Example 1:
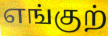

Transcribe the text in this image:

எங்குற்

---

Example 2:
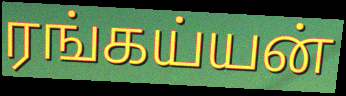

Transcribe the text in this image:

ரங்கய்யன்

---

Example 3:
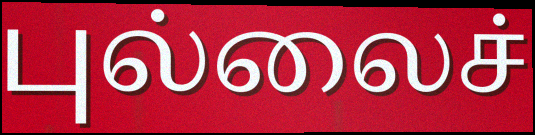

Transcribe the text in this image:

புல்லைச்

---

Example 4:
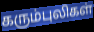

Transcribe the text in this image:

கரும்புலிகள்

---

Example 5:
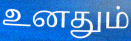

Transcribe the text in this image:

உனதும்